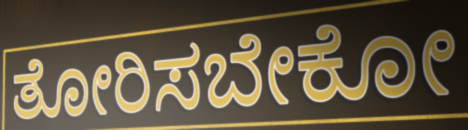
ತೋರಿಸಬೇಕೋ